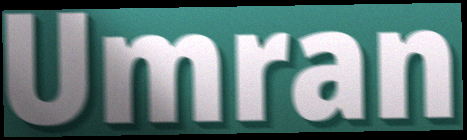
Umran